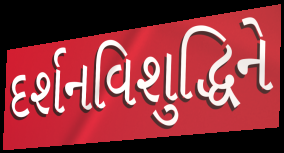
દર્શનવિશુદ્ધિને